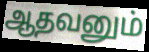
ஆதவனும்